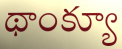
థాంక్యూ